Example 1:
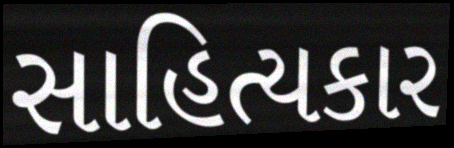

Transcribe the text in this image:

સાહિત્યકાર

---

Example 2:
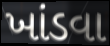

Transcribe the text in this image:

ખાંડવા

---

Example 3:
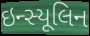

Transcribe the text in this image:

ઇન્સ્યૂલિન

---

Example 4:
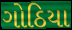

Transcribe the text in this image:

ગોઠિયા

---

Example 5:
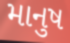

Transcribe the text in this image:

માનુષ